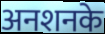
अनशनके